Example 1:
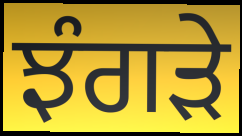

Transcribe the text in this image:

ਝੰਗੜੇ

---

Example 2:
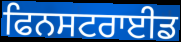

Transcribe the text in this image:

ਫਿਨਸਟਰਾਈਡ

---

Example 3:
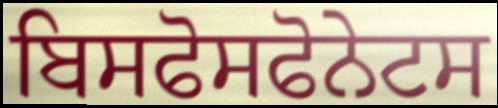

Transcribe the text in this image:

ਬਿਸਫੋਸਫੋਨੇਟਸ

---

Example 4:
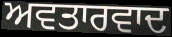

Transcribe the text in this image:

ਅਵਤਾਰਵਾਦ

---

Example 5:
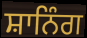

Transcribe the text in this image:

ਸ਼ਾਨਿੰਗ